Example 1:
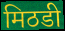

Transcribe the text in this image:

मिठडी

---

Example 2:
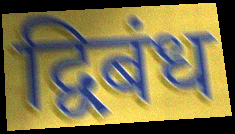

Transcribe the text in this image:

द्विबंध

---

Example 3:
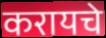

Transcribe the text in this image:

करायचे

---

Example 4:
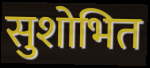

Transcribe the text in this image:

सुशोभित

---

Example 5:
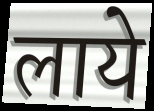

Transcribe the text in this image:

लाये